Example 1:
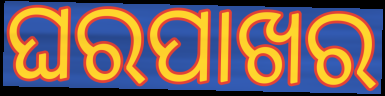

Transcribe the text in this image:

ଘରପାଖର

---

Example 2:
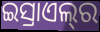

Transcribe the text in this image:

ଇସ୍ରାଏଲ୍‌ର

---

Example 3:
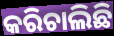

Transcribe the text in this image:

କରିଚାଲିଛି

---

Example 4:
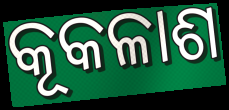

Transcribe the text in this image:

କୂକଳାଶ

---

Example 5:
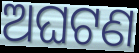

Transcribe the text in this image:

ଅଘଟଣ